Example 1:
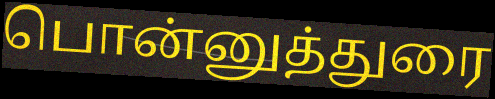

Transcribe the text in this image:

பொன்னுத்துரை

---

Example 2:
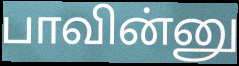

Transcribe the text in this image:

பாவின்னு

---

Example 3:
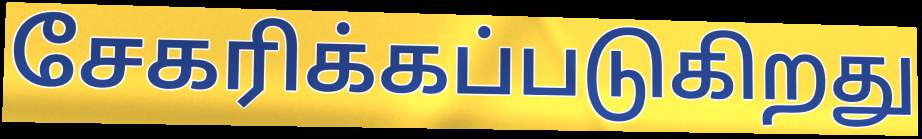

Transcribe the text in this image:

சேகரிக்கப்படுகிறது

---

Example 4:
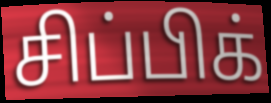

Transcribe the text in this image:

சிப்பிக்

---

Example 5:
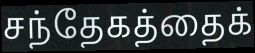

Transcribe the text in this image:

சந்தேகத்தைக்